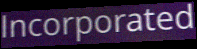
Incorporated